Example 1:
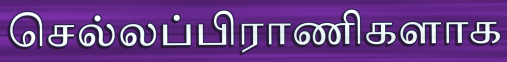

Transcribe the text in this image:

செல்லப்பிராணிகளாக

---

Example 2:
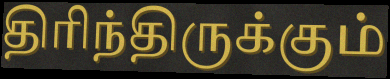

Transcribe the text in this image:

திரிந்திருக்கும்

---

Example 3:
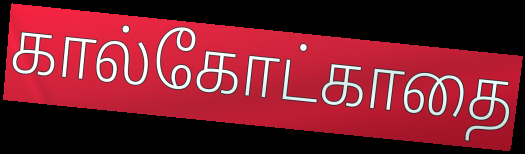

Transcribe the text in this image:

கால்கோட்காதை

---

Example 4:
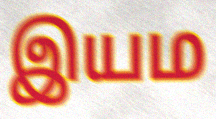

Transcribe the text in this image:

இயம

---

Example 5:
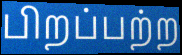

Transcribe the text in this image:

பிறப்பற்ற